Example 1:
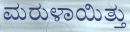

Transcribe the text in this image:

ಮರುಳಾಯಿತ್ತು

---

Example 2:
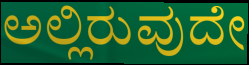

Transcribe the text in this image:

ಅಲ್ಲಿರುವುದೇ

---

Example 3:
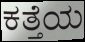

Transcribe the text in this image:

ಕತ್ತೆಯ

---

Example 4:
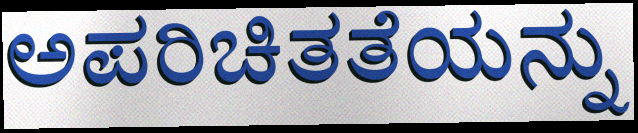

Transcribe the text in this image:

ಅಪರಿಚಿತತೆಯನ್ನು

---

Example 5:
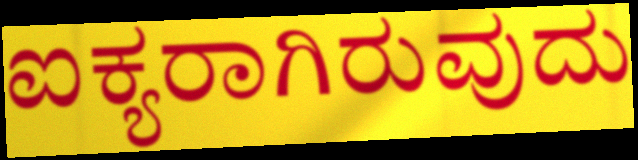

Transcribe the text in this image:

ಐಕ್ಯರಾಗಿರುವುದು